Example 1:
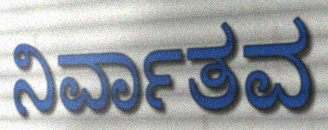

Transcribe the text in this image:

ನಿರ್ವಾತವ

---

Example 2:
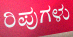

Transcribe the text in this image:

ರಿಪುಗಳು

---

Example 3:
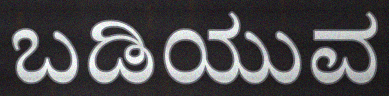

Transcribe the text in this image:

ಬಡಿಯುವ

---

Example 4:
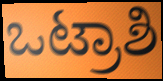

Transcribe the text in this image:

ಒಟ್ರಾಶಿ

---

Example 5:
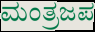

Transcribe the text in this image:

ಮಂತ್ರಜಪ